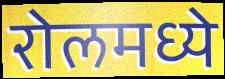
रोलमध्ये